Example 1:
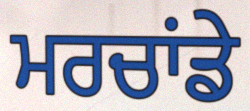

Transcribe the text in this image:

ਮਰਚਾਂਡੇ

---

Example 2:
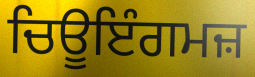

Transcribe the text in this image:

ਚਿਊਇੰਗਮਜ਼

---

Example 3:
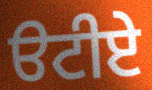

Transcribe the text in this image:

ੳਟੀਏ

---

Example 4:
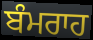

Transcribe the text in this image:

ਬੰਮਰਾਹ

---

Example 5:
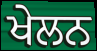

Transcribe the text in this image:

ਖੇਲਨ